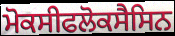
ਮੋਕਸੀਫਲੋਕਸੈਸਿਨ